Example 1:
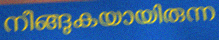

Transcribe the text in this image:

നീങ്ങുകയായിരുന്ന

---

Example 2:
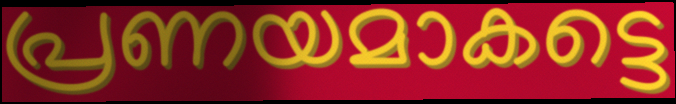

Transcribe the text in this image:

പ്രണയമാകട്ടെ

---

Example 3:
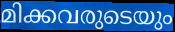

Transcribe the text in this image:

മിക്കവരുടെയും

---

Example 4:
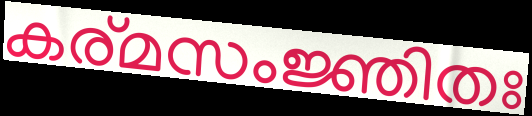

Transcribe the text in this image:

കര്മസംജ്ഞിതഃ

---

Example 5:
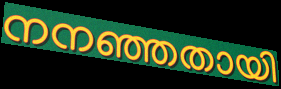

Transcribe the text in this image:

നനഞ്ഞതായി